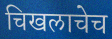
चिखलाचेच